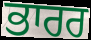
ਭਾਰਰ